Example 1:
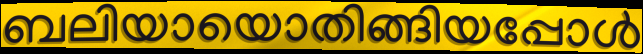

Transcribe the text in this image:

ബലിയായൊതിങ്ങിയപ്പോൾ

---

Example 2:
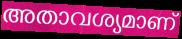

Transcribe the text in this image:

അതാവശ്യമാണ്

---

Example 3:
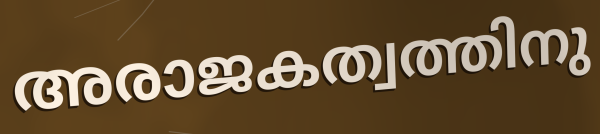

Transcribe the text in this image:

അരാജകത്വത്തിനു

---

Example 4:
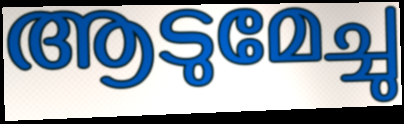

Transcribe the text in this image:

ആടുമേച്ചു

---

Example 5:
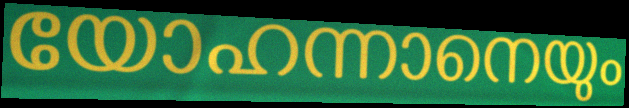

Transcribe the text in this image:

യോഹന്നാനെയും